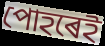
পোহৰেই